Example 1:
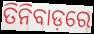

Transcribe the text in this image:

ତିନିବାଡ଼ରେ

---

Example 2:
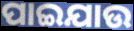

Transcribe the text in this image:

ପାଇଯାଉ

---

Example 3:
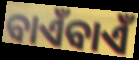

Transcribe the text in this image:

ବାଏଁବାଏଁ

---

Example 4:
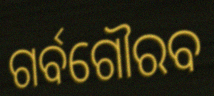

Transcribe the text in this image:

ଗର୍ବଗୌରବ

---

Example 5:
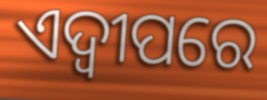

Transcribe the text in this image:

ଏଦ୍ୱୀପରେ